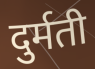
दुर्मती